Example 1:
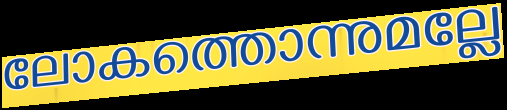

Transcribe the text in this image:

ലോകത്തൊന്നുമല്ലേ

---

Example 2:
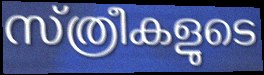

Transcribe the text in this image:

സ്‌ത്രീകളുടെ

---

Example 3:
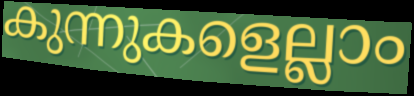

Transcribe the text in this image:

കുന്നുകളെല്ലാം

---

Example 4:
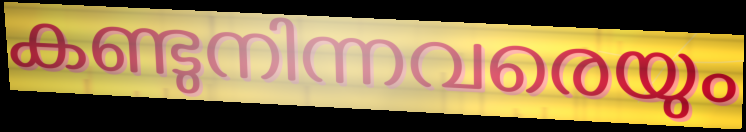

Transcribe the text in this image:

കണ്ടുനിന്നവരെയും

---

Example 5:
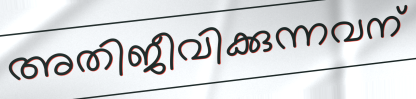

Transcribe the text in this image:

അതിജീവിക്കുന്നവന്